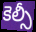
కెల్సీ